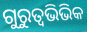
ଗୁରୁତ୍ଵଭିଭିକ